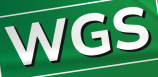
WGS